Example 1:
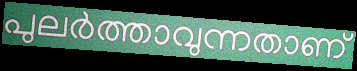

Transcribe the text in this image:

പുലർത്താവുന്നതാണ്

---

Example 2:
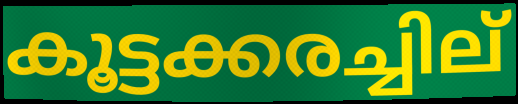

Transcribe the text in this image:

കൂട്ടക്കരച്ചില്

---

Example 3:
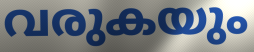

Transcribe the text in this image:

വരുകയും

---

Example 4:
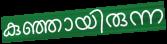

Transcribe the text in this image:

കുഞ്ഞായിരുന്ന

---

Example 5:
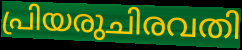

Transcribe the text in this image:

പ്രിയരുചിരവതി